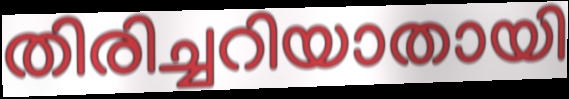
തിരിച്ചറിയാതായി